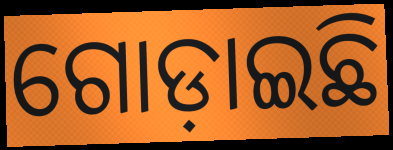
ଗୋଡ଼ାଇଛି